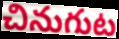
చినుగుట